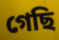
গেছি